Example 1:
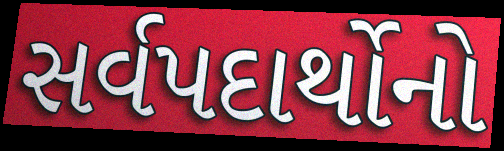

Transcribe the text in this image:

સર્વપદાર્થોનો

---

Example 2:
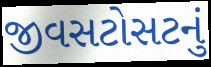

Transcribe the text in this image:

જીવસટોસટનું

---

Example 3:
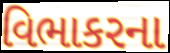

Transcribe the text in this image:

વિભાકરના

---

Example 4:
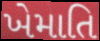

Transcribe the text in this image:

ખેમાતિ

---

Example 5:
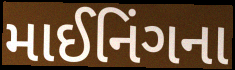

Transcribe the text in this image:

માઈનિંગના